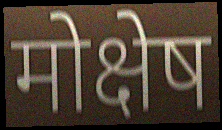
मोक्षेष